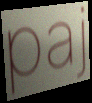
paj